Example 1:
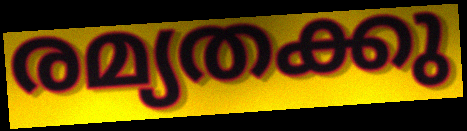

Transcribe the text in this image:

രമ്യതക്കു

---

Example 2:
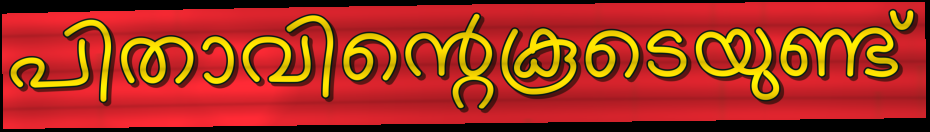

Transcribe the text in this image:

പിതാവിന്റെകൂടെയുണ്ട്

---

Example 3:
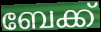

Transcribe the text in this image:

ബേക്ക്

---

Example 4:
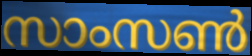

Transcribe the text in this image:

സാംസൺ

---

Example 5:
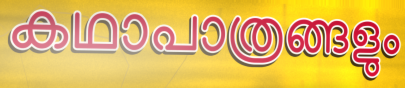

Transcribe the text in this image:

കഥാപാത്രങ്ങളും